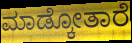
ಮಾಡ್ಕೋತಾರೆ